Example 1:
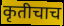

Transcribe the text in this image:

कृतीचाच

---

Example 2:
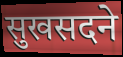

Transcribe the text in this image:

सुखसदने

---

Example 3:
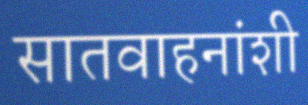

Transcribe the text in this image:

सातवाहनांशी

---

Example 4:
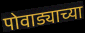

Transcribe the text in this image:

पोवाड्याच्या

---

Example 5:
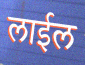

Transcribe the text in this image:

लाईल